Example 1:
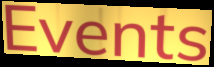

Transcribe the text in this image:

Events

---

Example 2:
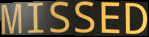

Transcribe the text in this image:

MISSED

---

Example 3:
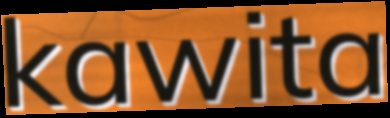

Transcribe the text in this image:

kawita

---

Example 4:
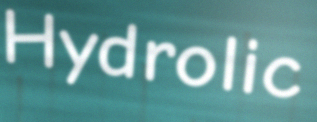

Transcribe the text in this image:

Hydrolic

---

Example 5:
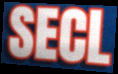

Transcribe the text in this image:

SECL